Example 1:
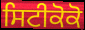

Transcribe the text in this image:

ਸਿਟੀਕੋਕੋ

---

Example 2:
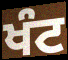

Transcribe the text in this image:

ਖੰਟ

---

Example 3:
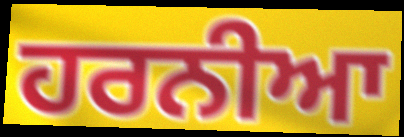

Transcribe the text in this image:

ਹਰਨੀਆ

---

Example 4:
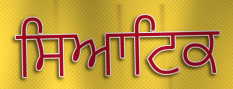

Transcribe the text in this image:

ਸਿਆਟਿਕ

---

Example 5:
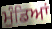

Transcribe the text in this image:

ਮੁੰਡਿਆਂ